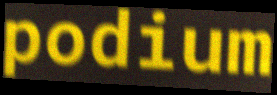
podium